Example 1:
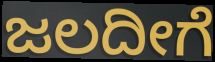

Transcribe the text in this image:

ಜಲದೀಗೆ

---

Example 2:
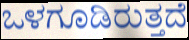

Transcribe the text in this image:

ಒಳಗೂಡಿರುತ್ತದೆ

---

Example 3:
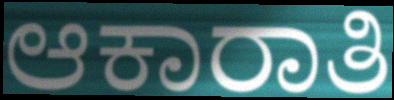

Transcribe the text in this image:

ಆಕಾರಾತಿ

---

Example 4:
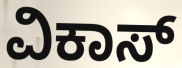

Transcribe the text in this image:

ವಿಕಾಸ್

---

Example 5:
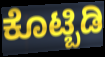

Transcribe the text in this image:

ಕೊಟ್ಬಿಡಿ